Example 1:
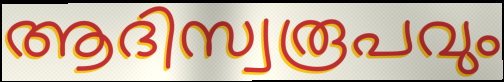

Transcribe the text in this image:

ആദിസ്വരൂപവും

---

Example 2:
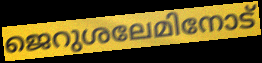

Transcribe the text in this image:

ജെറുശലേമിനോട്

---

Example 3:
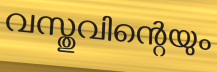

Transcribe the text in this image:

വസ്തുവിന്റെയും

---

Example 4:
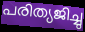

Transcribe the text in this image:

പരിത്യജിച്ചു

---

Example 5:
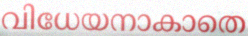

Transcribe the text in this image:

വിധേയനാകാതെ